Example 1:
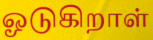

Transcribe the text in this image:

ஓடுகிறாள்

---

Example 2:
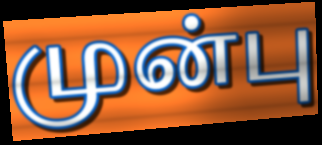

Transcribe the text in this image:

முன்பு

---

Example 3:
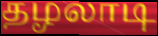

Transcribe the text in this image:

தழலாடி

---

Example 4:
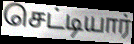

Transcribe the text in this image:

செட்டியார்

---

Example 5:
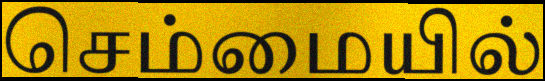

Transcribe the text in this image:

செம்மையில்